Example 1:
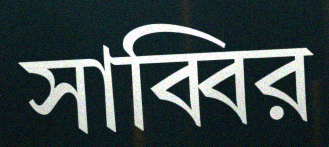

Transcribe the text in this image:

সাব্বির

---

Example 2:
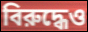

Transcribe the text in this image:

বিরুদ্ধেও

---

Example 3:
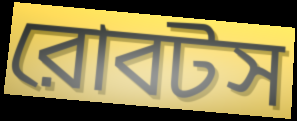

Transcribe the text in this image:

রোবটস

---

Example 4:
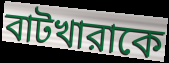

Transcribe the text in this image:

বাটখারাকে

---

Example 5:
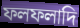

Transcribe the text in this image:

ফলফলাদি